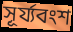
সূর্য্যবংশ